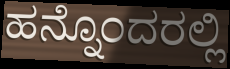
ಹನ್ನೊಂದರಲ್ಲಿ